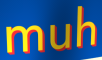
muh